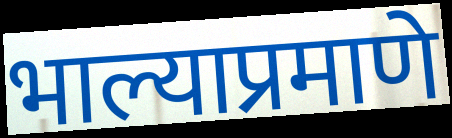
भाल्याप्रमाणे